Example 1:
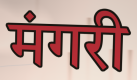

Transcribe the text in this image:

मंगरी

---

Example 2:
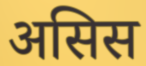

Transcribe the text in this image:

असिस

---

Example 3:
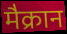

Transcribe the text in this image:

मैक्रान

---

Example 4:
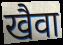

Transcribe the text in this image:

खैवा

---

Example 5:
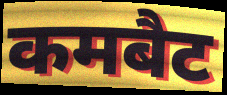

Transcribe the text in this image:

कमबैट